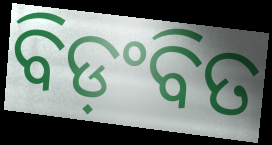
ବିଡ଼ଂବିତ